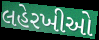
લહેરખીઓ